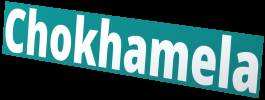
Chokhamela